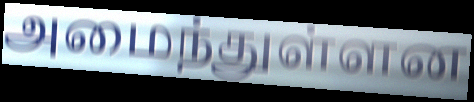
அமைந்துள்ளன